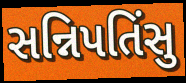
સન્નિપતિંસુ